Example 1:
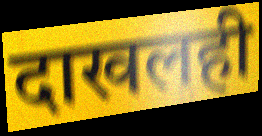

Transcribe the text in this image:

दाखलही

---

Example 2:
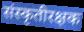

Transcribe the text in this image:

संस्कृतीरक्षक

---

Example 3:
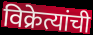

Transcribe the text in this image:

विक्रेत्यांची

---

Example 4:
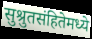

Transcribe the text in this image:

सुश्रुतसंहितेमध्ये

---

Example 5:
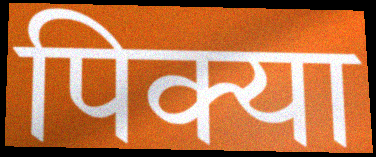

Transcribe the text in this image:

पिक्या